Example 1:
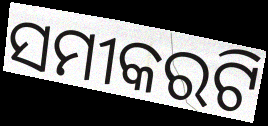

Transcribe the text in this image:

ସମୀକରଟି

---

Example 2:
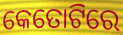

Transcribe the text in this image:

କେତୋଟିରେ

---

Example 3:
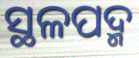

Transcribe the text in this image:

ସ୍ଥଳପଦ୍ମ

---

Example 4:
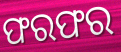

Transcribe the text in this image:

ଫରଫର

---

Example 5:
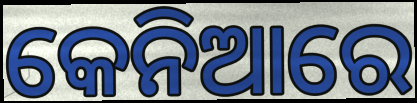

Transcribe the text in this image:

କେନିଆରେ